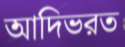
আদিভরত